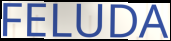
FELUDA